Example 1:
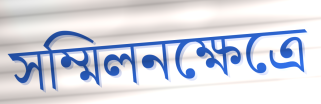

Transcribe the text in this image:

সম্মিলনক্ষেত্রে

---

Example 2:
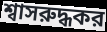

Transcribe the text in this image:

শ্বাসরুদ্ধকর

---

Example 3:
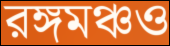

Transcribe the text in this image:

রঙ্গমঞ্চও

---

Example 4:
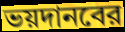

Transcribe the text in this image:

ভয়দানবের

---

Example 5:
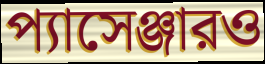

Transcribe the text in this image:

প্যাসেঞ্জারও